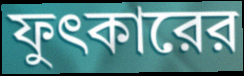
ফুৎকারের